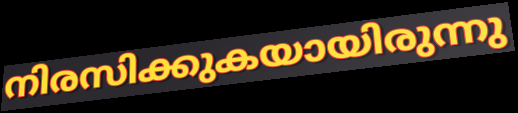
നിരസിക്കുകയായിരുന്നു